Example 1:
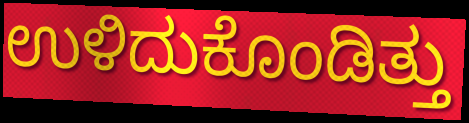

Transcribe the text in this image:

ಉಳಿದುಕೊಂಡಿತ್ತು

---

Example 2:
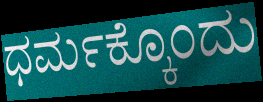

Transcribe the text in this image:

ಧರ್ಮಕ್ಕೊಂದು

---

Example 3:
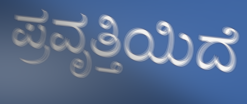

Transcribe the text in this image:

ಪ್ರವೃತ್ತಿಯಿದೆ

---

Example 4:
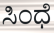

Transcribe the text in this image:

ಸಿಂಧೆ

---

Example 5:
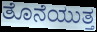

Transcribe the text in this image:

ತೊನೆಯುತ್ತ